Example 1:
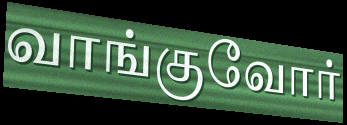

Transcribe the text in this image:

வாங்குவோர்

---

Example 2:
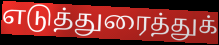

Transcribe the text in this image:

எடுத்துரைத்துக்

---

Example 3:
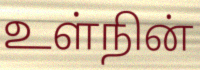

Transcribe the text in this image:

உள்நின்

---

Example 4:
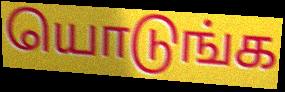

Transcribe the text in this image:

யொடுங்க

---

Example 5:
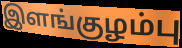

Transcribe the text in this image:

இளங்குழம்பு